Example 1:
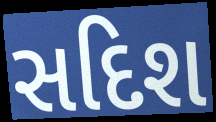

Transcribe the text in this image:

સદિશ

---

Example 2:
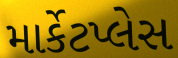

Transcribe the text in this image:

માર્કેટપ્લેસ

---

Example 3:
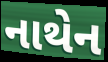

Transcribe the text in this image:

નાથેન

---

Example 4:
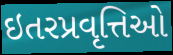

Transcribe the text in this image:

ઇતરપ્રવૃત્તિઓ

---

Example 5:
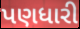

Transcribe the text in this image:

પણધારી